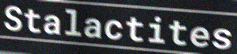
Stalactites